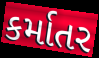
કર્માતર